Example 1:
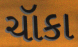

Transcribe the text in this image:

ચૉકા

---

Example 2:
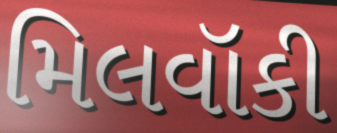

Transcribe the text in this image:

મિલવૉકી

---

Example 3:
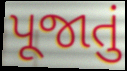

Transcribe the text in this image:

પૂજાતું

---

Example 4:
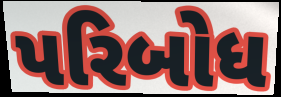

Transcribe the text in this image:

પરિબોધ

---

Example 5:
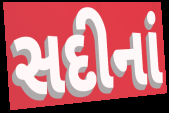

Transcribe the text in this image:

સદીનાં